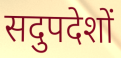
सदुपदेशों